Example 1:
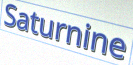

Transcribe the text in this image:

Saturnine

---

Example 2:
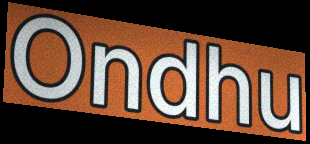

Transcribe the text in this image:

Ondhu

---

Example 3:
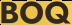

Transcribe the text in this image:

BOQ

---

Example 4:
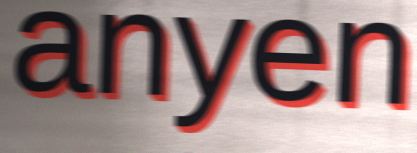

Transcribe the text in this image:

anyen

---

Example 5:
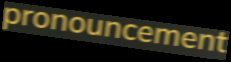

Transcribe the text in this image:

pronouncement